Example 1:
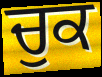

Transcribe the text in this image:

ਚੁਕ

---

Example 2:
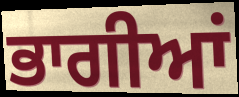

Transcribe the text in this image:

ਭਾਗੀਆਂ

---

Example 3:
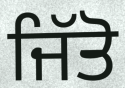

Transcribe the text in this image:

ਜਿੱਤੋ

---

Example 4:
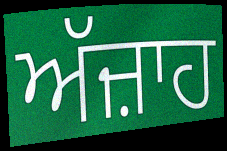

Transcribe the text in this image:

ਅੱਜ਼ਾਹ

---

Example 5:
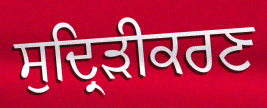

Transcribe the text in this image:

ਸੁਦ੍ਰਿੜੀਕਰਣ